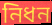
নিধন